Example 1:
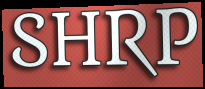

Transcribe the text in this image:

SHRP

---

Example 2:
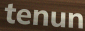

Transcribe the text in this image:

tenun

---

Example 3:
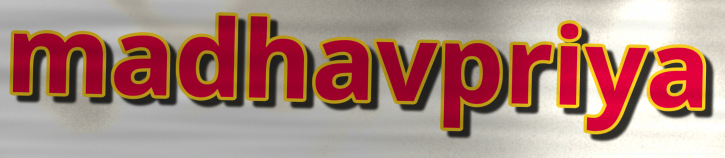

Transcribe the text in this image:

madhavpriya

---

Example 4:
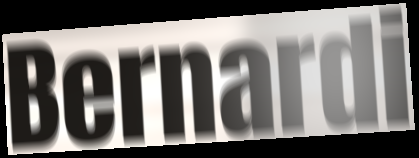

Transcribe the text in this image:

Bernardi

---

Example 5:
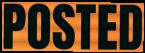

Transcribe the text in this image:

POSTED